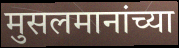
मुसलमानांच्या